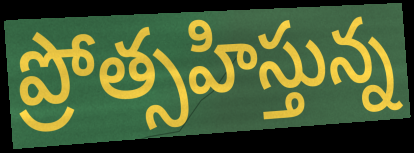
ప్రోత్సహిస్తున్న